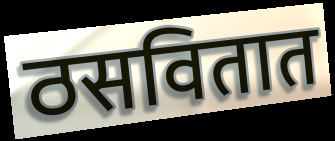
ठसवितात